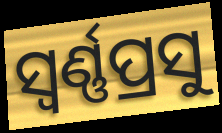
ସ୍ୱର୍ଣ୍ଣପ୍ରସୁ